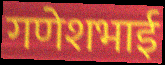
गणेशभाई